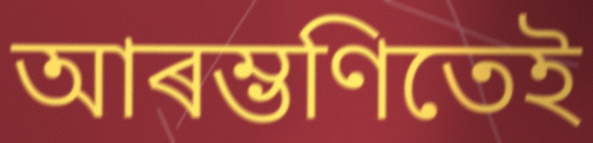
আৰম্ভণিতেই